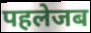
पहलेजब